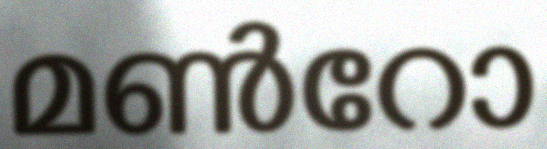
മൺറോ